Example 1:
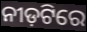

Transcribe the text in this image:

ନୀଡ଼ଟିରେ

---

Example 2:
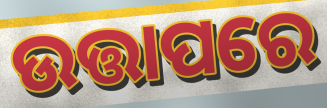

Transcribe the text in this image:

ଉତ୍ତାପରେ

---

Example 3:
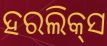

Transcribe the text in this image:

ହରଲିକ୍‍ସ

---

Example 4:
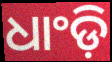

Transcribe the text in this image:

ଧାଂଡ଼ି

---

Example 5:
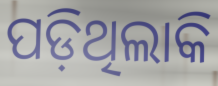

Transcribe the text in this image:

ପଡ଼ିଥିଲାକି